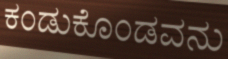
ಕಂಡುಕೊಂಡವನು